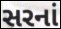
સરનાં